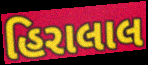
હિરાલાલ